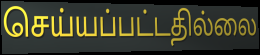
செய்யப்பட்டதில்லை